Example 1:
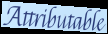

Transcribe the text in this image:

Attributable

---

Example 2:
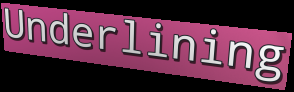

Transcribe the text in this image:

Underlining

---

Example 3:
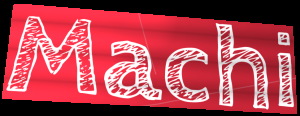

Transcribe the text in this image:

Machi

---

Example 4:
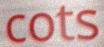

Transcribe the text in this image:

cots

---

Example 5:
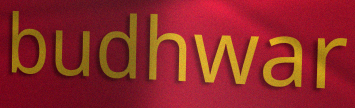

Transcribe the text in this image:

budhwar